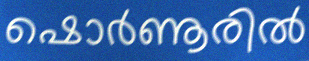
ഷൊർണൂരിൽ